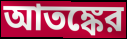
আতঙ্কের